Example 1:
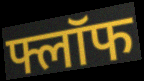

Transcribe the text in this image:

फ्लॉफ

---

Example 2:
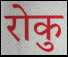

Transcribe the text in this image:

रोकु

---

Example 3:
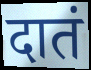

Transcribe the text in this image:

दातं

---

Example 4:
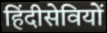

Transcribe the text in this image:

हिंदीसेवियों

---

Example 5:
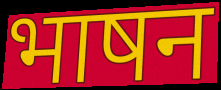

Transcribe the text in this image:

भाषन